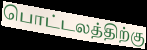
பொட்டலத்திற்கு